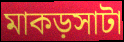
মাকড়সাটা